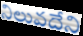
నిలువదేని